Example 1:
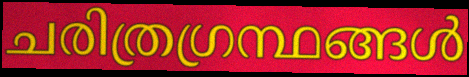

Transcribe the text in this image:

ചരിത്രഗ്രന്ഥങ്ങൾ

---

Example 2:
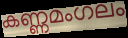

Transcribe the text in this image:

കണ്ണമംഗലം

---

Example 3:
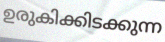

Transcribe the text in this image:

ഉരുകിക്കിടക്കുന്ന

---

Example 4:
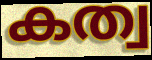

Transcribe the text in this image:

കത്വ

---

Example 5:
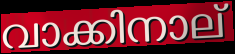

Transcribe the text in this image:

വാക്കിനാല്